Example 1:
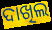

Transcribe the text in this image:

ଦାଖିଲ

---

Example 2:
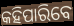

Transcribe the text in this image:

କହିପାରିବେ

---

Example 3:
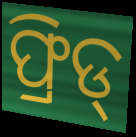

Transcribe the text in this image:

ଫ୍ରିଡ୍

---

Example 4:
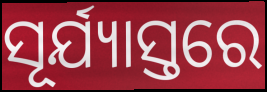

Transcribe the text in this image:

ସୂର୍ଯ୍ୟାସ୍ତରେ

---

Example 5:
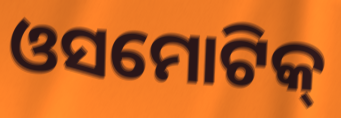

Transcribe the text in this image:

ଓସମୋଟିକ୍